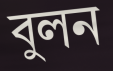
বুলন